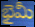
భైమీ